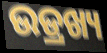
ଉଡ୍ରଖ୍ୟ